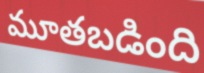
మూతబడింది